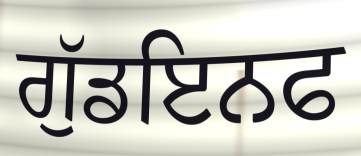
ਗੁੱਡਇਨਫ